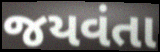
જયવંતા